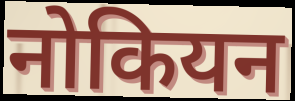
नोकियन